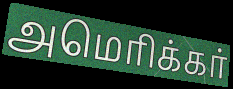
அமெரிக்கர்